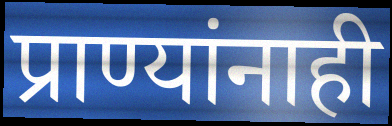
प्राण्यांनाही